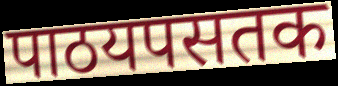
पाठयपसतक